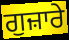
ਗੁਜ਼ਾਰੇ